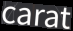
carat